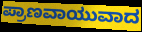
ಪ್ರಾಣವಾಯುವಾದ